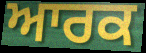
ਆਰਕ